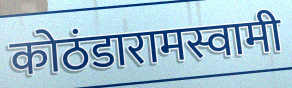
कोठंडारामस्वामी